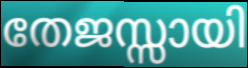
തേജസ്സായി